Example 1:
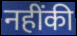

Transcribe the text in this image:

नहींकी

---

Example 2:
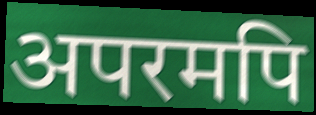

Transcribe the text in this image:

अपरमपि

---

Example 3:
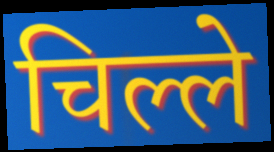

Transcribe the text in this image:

चिल्ले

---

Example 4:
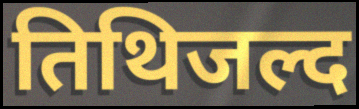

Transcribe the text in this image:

तिथिजल्द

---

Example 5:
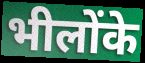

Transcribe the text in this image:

भीलोंके